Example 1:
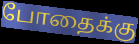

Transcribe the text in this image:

போதைக்கு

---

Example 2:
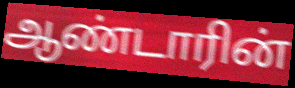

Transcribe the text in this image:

ஆண்டாரின்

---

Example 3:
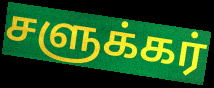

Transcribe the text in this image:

சளுக்கர்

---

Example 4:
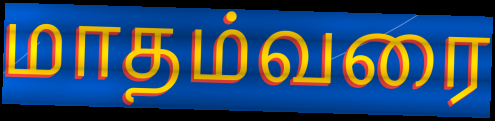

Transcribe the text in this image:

மாதம்வரை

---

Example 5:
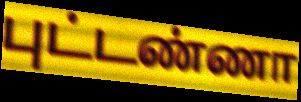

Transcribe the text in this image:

புட்டண்ணா